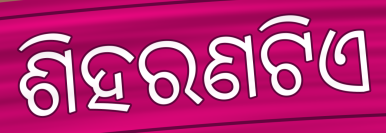
ଶିହରଣଟିଏ